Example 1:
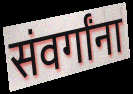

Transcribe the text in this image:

संवर्गांना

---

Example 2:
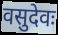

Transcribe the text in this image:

वसुदेवः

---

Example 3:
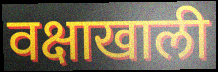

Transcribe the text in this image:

वक्षाखाली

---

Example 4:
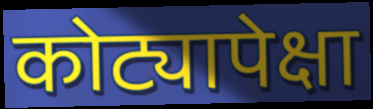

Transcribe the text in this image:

कोट्यापेक्षा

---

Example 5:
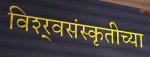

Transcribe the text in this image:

विश्र्वसंस्कृतीच्या